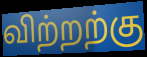
விற்றற்கு